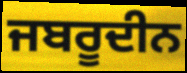
ਜਬਰੂਦੀਨ